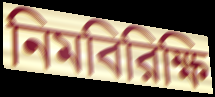
নিমবিরিক্ষি